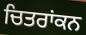
ਚਿਤਰਾਂਕਨ